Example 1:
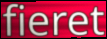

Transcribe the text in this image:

fieret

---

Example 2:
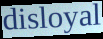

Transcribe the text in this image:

disloyal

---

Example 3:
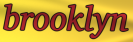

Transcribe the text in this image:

brooklyn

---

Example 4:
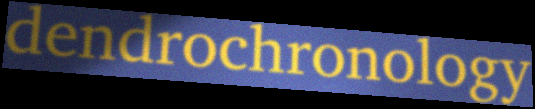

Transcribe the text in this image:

dendrochronology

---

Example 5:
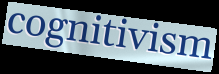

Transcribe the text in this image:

cognitivism